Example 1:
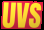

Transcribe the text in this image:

UVS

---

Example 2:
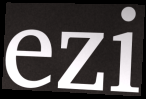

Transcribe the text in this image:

ezi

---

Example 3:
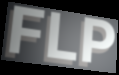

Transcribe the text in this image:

FLP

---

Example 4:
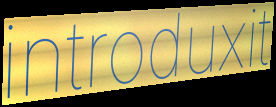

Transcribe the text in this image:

introduxit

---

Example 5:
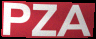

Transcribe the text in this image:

PZA